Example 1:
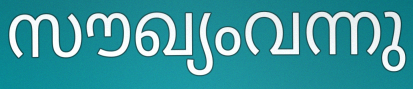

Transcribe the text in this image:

സൗഖ്യംവന്നു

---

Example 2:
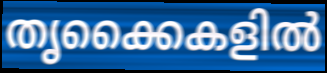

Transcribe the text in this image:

തൃക്കൈകളിൽ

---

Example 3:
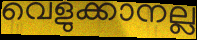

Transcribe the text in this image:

വെളുക്കാനല്ല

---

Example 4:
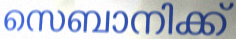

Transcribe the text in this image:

സെബാനിക്ക്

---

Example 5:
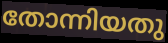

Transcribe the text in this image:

തോന്നിയതു